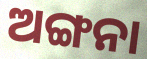
ଅଙ୍ଗନା